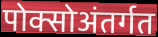
पोक्सोअंतर्गत